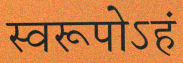
स्वरूपोऽहं